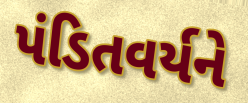
પંડિતવર્યને